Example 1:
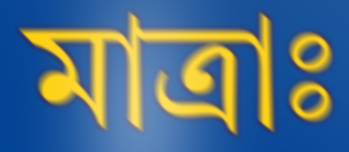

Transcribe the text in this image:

মাত্রাঃ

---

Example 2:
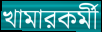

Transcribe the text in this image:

খামারকর্মী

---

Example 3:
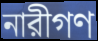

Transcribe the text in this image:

নারীগণ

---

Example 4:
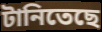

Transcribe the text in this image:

টানিতেছে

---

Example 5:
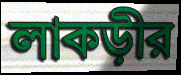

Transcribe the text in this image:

লাকড়ীর